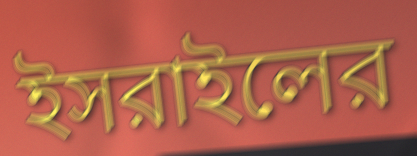
ইসরাইলের